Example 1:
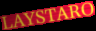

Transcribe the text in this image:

LAYSTARO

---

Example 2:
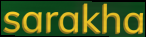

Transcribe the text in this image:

sarakha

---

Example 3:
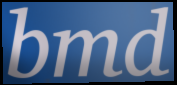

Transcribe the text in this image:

bmd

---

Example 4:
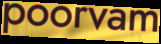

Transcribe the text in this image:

poorvam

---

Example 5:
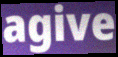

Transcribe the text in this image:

agive